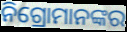
ନିଗ୍ରୋମାନଙ୍କର